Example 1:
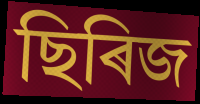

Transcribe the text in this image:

ছিৰিজ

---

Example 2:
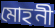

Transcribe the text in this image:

মোহনী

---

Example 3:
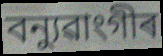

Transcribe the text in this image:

বন্যুৱাংগীৰ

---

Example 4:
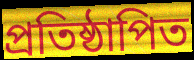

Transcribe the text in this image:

প্ৰতিষ্ঠাপিত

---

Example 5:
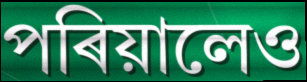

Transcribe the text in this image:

পৰিয়ালেও